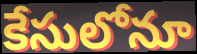
కేసులోనూ